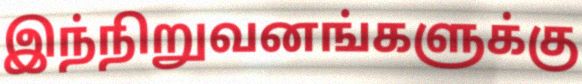
இந்நிறுவனங்களுக்கு